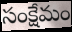
సంక్షేమం